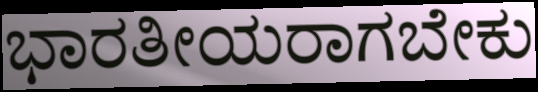
ಭಾರತೀಯರಾಗಬೇಕು